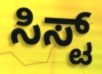
ಸಿಸ್ಟ್